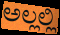
ಅಲ್ಲಲ್ಲಿ